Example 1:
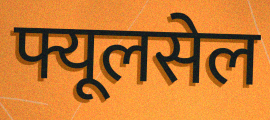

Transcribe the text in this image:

फ्यूलसेल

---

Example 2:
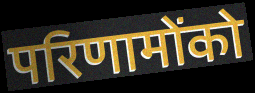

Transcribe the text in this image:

परिणामोंको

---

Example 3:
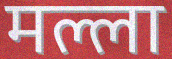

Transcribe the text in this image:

मल्‍ला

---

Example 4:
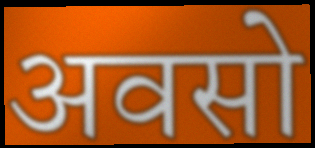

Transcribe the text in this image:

अवसो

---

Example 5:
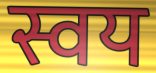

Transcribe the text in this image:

स्वय